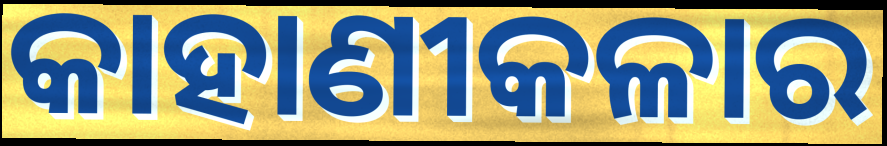
କାହାଣୀକଳାର